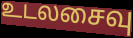
உடலசைவு